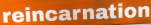
reincarnation